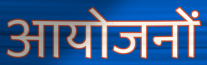
आयोजनों